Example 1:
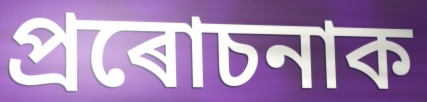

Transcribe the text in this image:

প্ৰৰোচনাক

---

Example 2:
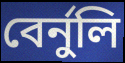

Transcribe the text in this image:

বেৰ্নুলি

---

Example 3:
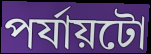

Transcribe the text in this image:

পৰ্যায়টো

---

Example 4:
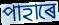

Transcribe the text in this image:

পাহাৰে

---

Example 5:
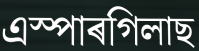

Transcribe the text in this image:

এস্পাৰগিলাছ